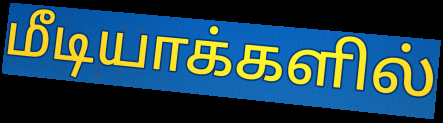
மீடியாக்களில்